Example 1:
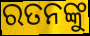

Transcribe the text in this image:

ରତନଙ୍କୁ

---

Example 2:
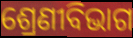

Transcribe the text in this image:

ଶ୍ରେଣୀବିଭାଗ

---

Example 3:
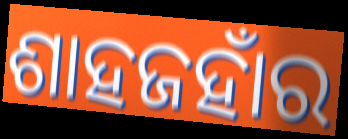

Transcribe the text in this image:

ଶାହଜହାଁର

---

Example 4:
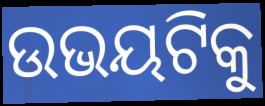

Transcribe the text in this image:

ଉଭୟଟିକୁ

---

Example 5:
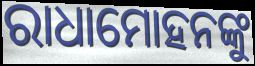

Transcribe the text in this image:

ରାଧାମୋହନଙ୍କୁ